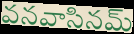
వనవాసినమ్